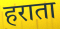
हराता